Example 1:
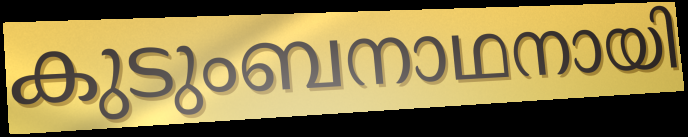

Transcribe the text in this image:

കുടുംബനാഥനായി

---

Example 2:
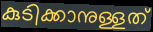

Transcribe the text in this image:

കുടിക്കാനുള്ളത്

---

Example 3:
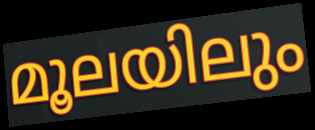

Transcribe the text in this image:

മൂലയിലും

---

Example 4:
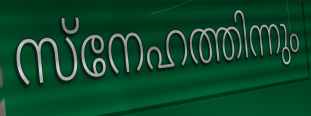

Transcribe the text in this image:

സ്നേഹത്തിന്നും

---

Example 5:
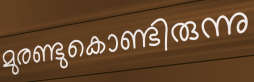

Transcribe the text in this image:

മുരണ്ടുകൊണ്ടിരുന്നു